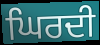
ਘਿਰਦੀ